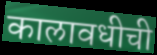
कालावधीची